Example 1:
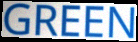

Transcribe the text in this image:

GREEN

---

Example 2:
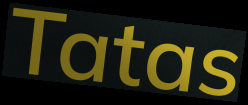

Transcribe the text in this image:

Tatas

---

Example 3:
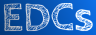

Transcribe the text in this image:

EDCs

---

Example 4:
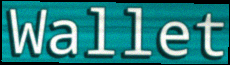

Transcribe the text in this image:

Wallet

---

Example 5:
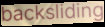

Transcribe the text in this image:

backsliding